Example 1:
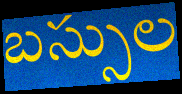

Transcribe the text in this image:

బస్సుల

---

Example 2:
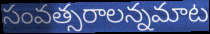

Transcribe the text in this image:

సంవత్సరాలన్నమాట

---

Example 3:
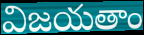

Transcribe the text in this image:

విజయతాం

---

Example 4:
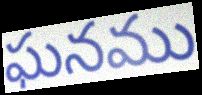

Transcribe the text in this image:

ఘనము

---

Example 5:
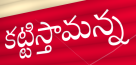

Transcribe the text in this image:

కట్టిస్తామన్న